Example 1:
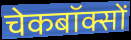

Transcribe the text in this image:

चेकबॉक्सों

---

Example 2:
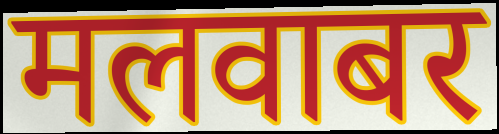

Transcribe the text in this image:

मलवाबर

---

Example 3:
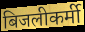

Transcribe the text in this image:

बिजलीकर्मी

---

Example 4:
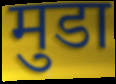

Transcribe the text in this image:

मुडा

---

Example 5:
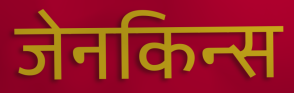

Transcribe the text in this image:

जेनकिन्स